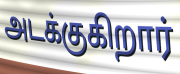
அடக்குகிறார்